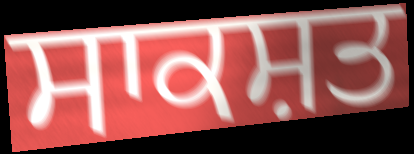
ਸਾਕਸ਼ਤ